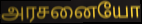
அரசனையோ